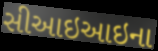
સીઆઇઆઇના